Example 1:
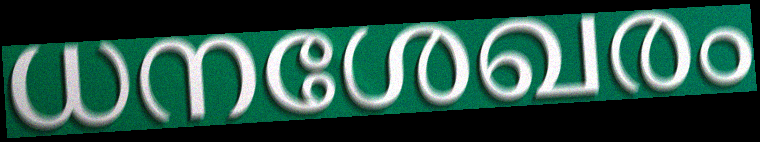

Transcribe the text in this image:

ധനശേഖരം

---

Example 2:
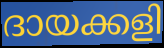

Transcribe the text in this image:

ദായക്കളി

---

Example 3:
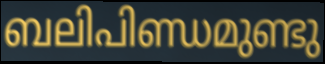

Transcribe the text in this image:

ബലിപിണ്ഡമുണ്ടു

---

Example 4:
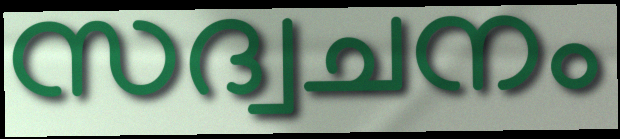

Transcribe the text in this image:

സദ്വചനം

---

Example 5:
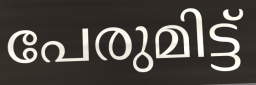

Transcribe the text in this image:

പേരുമിട്ട്